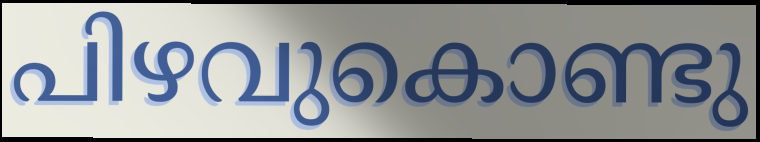
പിഴവുകൊണ്ടു